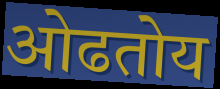
ओढतोय